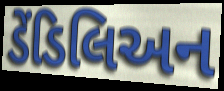
ડેંડિલિઅન